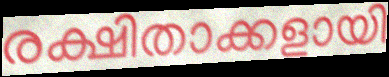
രക്ഷിതാക്കളായി